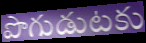
పొగుడుటకు